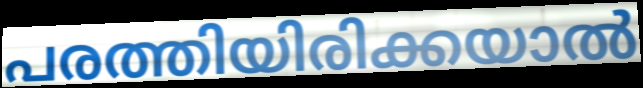
പരത്തിയിരിക്കയാൽ